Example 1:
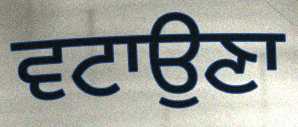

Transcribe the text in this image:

ਵਟਾਉਣਾ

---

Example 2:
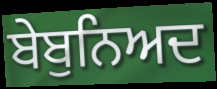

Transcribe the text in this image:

ਬੇਬੁਨਿਅਦ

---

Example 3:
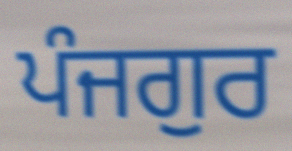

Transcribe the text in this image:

ਪੰਜਗੁਰ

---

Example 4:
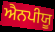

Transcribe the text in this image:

ਐਨਪੀਯੂ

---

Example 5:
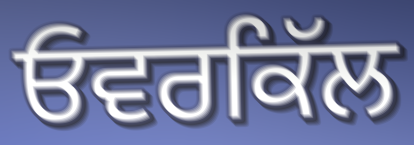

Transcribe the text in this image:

ਓਵਰਕਿੱਲ